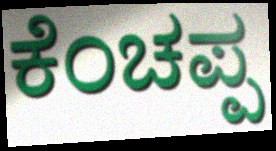
ಕೆಂಚಪ್ಪ